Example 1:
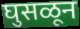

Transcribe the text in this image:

घुसळून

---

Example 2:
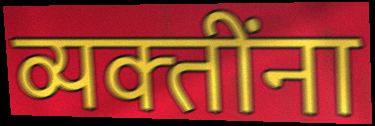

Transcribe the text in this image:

व्यक्‍तींना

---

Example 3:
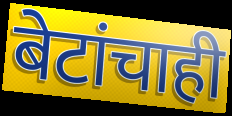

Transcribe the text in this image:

बेटांचाही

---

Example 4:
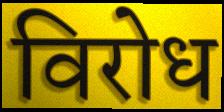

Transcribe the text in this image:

विरोध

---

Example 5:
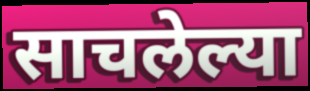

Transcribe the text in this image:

साचलेल्या